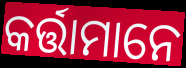
କର୍ତ୍ତାମାନେ